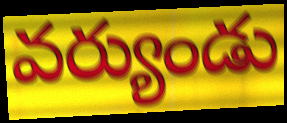
వర్యుండు